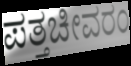
ಪತ್ತಚೀವರಂ